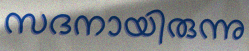
സദനായിരുന്നു